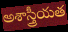
అశాస్త్రీయత